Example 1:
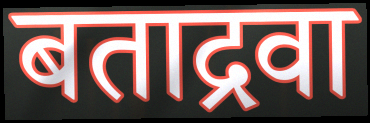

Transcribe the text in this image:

बताद्रवा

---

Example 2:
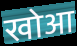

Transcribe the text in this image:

खोआ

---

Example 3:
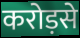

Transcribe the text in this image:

करोड़से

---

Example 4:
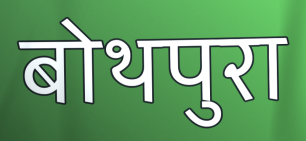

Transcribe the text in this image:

बोथपुरा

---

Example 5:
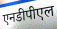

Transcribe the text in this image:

एनडीपीएल